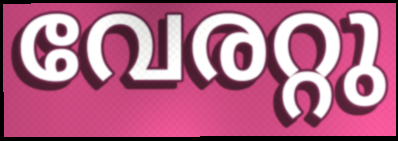
വേരറ്റു